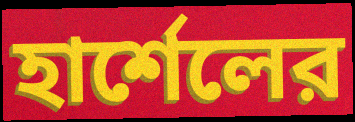
হার্শেলের